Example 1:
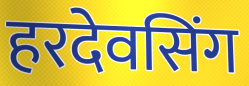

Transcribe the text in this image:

हरदेवसिंग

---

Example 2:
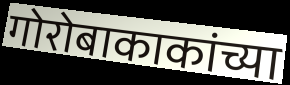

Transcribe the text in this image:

गोरोबाकाकांच्या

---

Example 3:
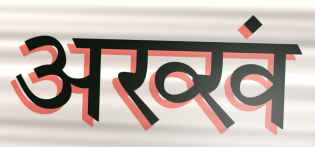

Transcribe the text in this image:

अख्खं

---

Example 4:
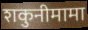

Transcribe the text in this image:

शकुनीमामा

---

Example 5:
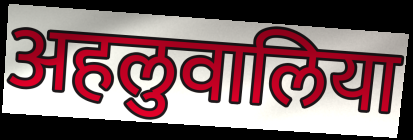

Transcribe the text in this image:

अहलुवालिया